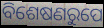
ବିଶେଷଣରୁପେ